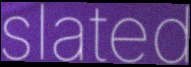
slated